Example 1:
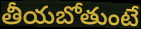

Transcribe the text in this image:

తీయబోతుంటే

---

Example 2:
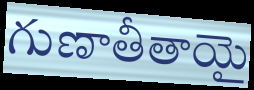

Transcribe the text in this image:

గుణాతీతాయై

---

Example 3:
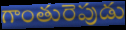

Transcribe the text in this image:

గాంతురెపుడు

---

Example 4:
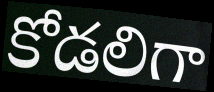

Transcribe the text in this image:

కోడలిగా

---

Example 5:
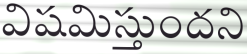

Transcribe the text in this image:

విషమిస్తుందని